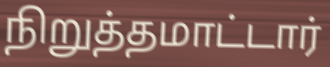
நிறுத்தமாட்டார்